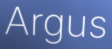
Argus